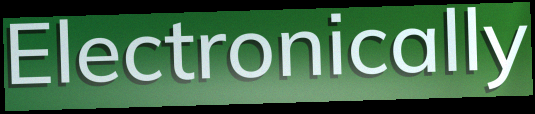
Electronically